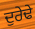
ਦੁਰੇਢੇ